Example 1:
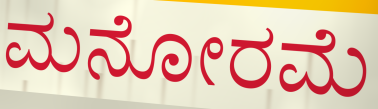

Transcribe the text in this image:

ಮನೋರಮೆ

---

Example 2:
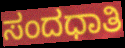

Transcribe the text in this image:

ಸಂದಧಾತಿ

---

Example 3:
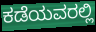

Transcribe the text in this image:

ಕಡೆಯವರಲ್ಲಿ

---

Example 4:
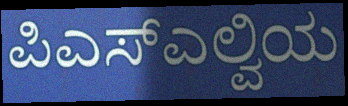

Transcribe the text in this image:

ಪಿಎಸ್ಎಲ್ವಿಯ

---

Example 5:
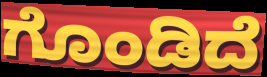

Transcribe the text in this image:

ಗೊಂಡಿದೆ